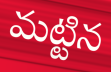
మట్టిన